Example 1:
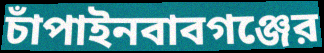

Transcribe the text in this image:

চাঁপাইনবাবগঞ্জের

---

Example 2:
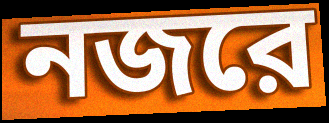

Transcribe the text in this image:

নজরে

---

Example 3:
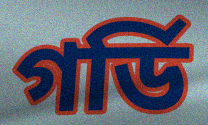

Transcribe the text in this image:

গর্ডি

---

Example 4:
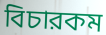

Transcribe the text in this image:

বিচারকম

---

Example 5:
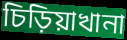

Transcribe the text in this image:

চিড়িয়াখানা